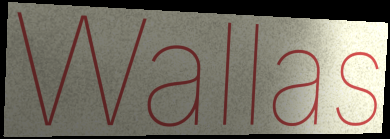
Wallas